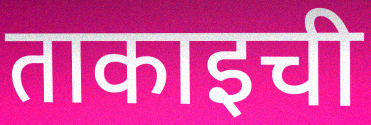
ताकाइची